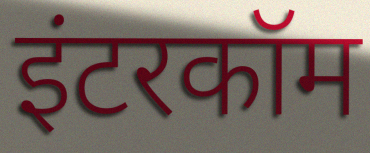
इंटरकॉम